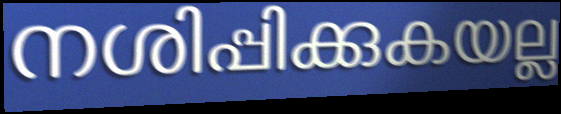
നശിപ്പിക്കുകയല്ല